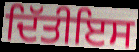
ਦਿੱਤੀਇਸ